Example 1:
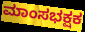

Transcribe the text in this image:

ಮಾಂಸಭಕ್ಷಕ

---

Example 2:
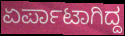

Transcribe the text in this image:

ಏರ್ಪಾಟಾಗಿದ್ದ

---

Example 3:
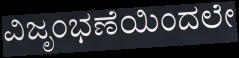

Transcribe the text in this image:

ವಿಜೃಂಭಣೆಯಿಂದಲೇ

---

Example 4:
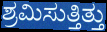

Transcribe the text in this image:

ಶ್ರಮಿಸುತ್ತಿತ್ತು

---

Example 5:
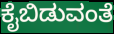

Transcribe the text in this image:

ಕೈಬಿಡುವಂತೆ